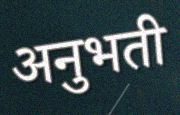
अनुभती